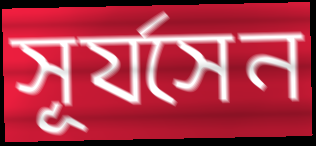
সূর্যসেন